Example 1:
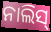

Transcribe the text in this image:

ନାଲିସ୍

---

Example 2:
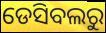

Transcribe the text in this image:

ଡେସିବଲରୁ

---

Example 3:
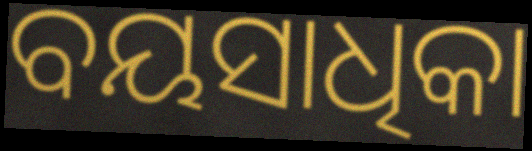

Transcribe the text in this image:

ବୟସାଧିକା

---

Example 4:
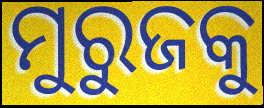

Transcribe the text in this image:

ମୁରୁଜକୁ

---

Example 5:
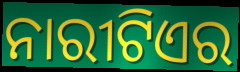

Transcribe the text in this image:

ନାରୀଟିଏର